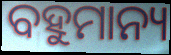
ବହୁମାନ୍ୟ